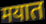
मयात